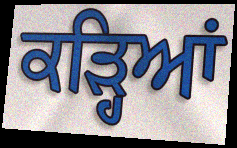
ਕੜ੍ਹਿਆਂ